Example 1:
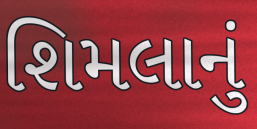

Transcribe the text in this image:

શિમલાનું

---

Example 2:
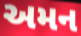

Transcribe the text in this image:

અમન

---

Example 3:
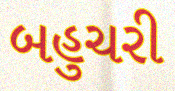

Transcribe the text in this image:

બહુચરી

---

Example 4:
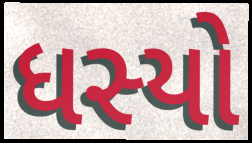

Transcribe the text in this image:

ધસ્યો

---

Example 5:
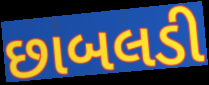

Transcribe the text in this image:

છાબલડી